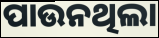
ପାଉନଥିଲା